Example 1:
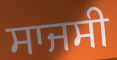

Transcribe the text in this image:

ਸਾਜਸੀ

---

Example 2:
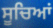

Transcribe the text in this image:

ਸੂਚਿਆਂ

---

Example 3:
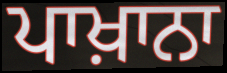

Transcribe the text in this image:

ਪਾਖ਼ਾਨਾ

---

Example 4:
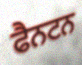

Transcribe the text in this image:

ਫੈਨਟਨ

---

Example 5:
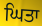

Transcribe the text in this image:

ਘਿਤਾ